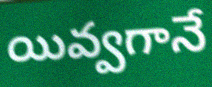
యివ్వగానే